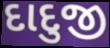
દાદુજી